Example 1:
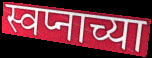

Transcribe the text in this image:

स्वप्नाच्या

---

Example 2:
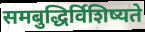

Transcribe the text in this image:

समबुद्धिर्विशिष्यते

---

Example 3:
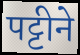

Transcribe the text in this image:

पट्टीने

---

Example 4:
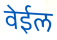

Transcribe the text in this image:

वेईल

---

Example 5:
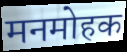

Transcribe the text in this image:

मनमोहक